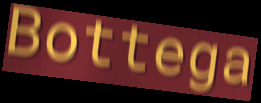
Bottega